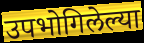
उपभोगिलेल्या